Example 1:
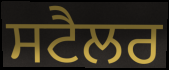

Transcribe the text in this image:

ਸਟੈਲਰ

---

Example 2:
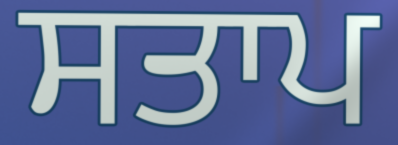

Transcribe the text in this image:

ਸਤਾਪ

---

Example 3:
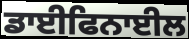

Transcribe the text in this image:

ਡਾਈਫਿਨਾਈਲ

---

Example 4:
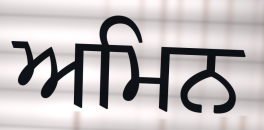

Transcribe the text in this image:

ਅਮਿਨ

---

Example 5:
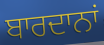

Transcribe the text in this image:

ਬਾਰਦਾਨਾਂ